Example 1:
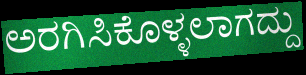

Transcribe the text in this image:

ಅರಗಿಸಿಕೊಳ್ಳಲಾಗದ್ದು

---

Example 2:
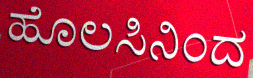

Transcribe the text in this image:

ಹೊಲಸಿನಿಂದ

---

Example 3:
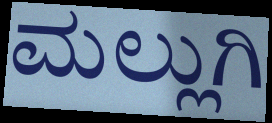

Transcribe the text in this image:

ಮಲ್ಲುಗಿ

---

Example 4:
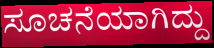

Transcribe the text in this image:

ಸೂಚನೆಯಾಗಿದ್ದು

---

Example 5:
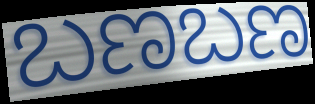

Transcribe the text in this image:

ಬಣಬಣ